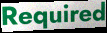
Required